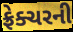
ફ્રેક્ચરની